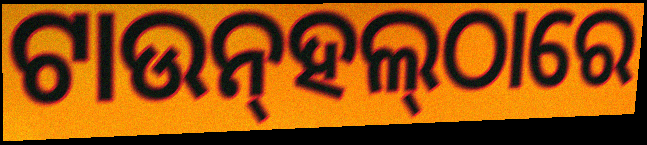
ଟାଉନ୍‌ହଲ୍‌ଠାରେ